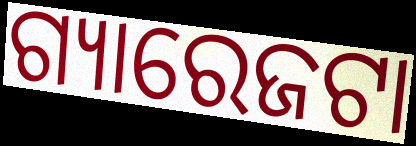
ଗ୍ୟାରେଜଟା